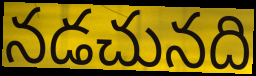
నడచునది